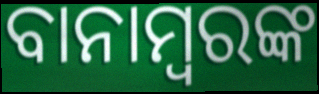
ବାନାମ୍ବରଙ୍କ